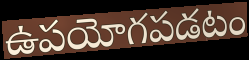
ఉపయోగపడటం